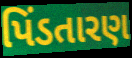
પિંડતારણ